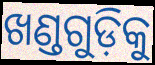
ଖଣ୍ଡଗୁଡ଼ିକୁ